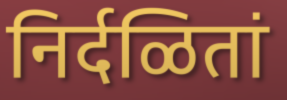
निर्दळितां